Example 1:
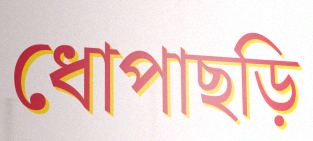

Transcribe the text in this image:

ধোপাছড়ি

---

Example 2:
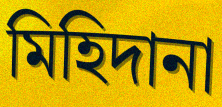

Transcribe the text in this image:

মিহিদানা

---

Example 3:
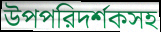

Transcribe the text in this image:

উপপরিদর্শকসহ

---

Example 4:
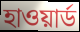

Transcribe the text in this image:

হাওয়ার্ড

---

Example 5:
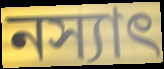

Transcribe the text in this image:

নস্যাৎ